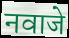
नवाजे